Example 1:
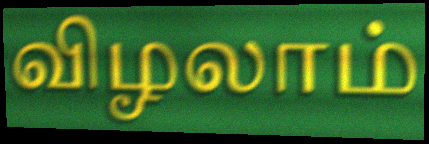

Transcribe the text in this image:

விழலாம்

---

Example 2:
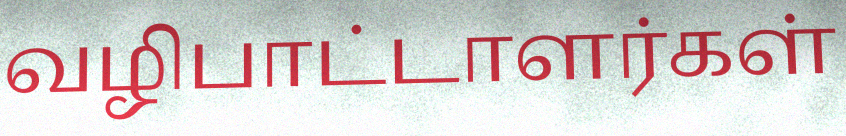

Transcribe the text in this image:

வழிபாட்டாளர்கள்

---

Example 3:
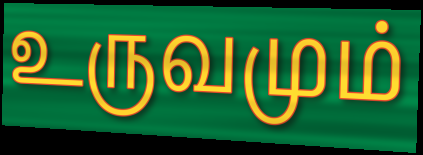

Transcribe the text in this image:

உருவமும்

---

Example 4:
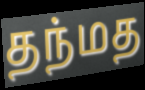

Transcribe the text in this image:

தந்மத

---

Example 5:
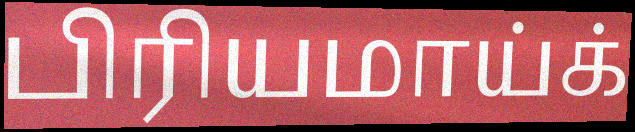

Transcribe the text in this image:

பிரியமாய்க்